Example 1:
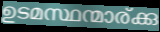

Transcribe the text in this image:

ഉടമസ്ഥന്മാര്ക്കു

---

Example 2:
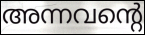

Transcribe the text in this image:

അന്നവന്റെ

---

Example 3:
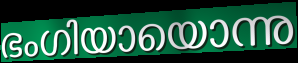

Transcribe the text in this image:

ഭംഗിയായൊന്നു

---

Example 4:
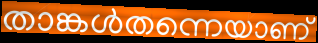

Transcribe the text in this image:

താങ്കൾതന്നെയാണ്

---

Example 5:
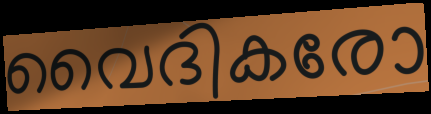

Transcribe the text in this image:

വൈദികരോ